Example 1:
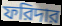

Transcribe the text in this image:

ফরিদার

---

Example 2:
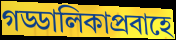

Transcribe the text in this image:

গড্ডালিকাপ্রবাহে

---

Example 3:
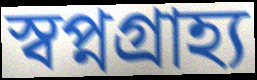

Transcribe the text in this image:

স্বপ্নগ্রাহ্য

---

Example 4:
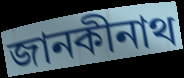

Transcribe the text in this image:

জানকীনাথ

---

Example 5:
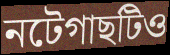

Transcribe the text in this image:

নটেগাছটিও